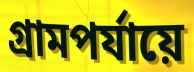
গ্রামপর্যায়ে